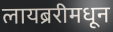
लायब्ररीमधून